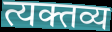
त्यक्तव्य